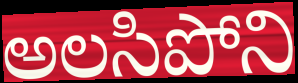
అలసిపోని